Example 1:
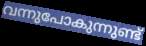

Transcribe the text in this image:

വന്നുപോകുന്നുണ്ട്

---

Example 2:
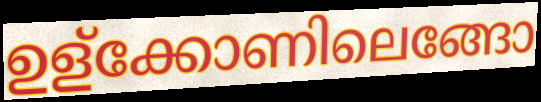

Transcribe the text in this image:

ഉള്ക്കോണിലെങ്ങോ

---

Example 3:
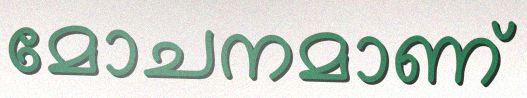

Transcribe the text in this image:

മോചനമാണ്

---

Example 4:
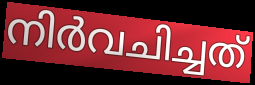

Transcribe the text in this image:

നിർവചിച്ചത്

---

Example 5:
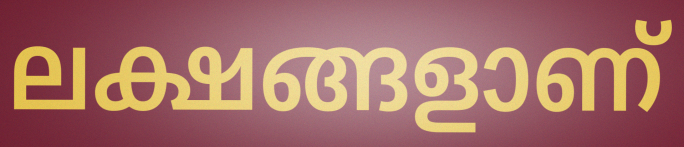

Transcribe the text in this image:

ലക്ഷങ്ങളാണ്